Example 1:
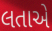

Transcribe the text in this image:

લતાએ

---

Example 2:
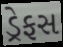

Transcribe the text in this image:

ડ્રેફસ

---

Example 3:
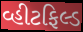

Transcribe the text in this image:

વ્હીટફિલ્ડ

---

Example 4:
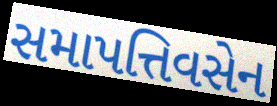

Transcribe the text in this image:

સમાપત્તિવસેન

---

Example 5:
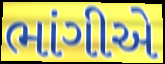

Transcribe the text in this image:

ભાંગીએ